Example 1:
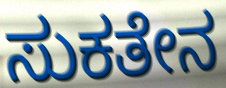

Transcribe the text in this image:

ಸುಕತೇನ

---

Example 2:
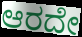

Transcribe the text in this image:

ಆರದೇ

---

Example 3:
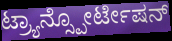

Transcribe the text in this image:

ಟ್ರ್ಯಾನ್ಸ್ಪೋರ್ಟೇಷನ್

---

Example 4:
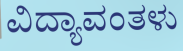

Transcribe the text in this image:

ವಿದ್ಯಾವಂತಳು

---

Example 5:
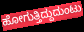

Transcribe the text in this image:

ಹೋಗುತ್ತಿದ್ದುದುಂಟು